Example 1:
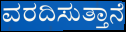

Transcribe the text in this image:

ವರದಿಸುತ್ತಾನೆ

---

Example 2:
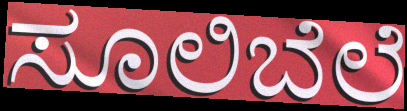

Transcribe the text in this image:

ಸೂಲಿಬೆಲೆ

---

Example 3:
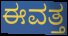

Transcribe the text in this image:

ಈವತ್ತ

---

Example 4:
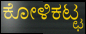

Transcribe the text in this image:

ಕೋಳಿಕಟ್ಟ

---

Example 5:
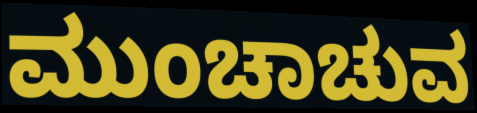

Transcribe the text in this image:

ಮುಂಚಾಚುವ